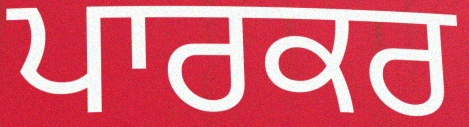
ਪਾਰਕਰ